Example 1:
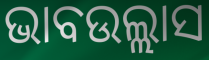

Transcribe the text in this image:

ଭାବଉଲ୍ଲାସ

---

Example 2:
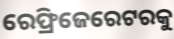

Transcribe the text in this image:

ରେଫ୍ରିଜେରେଟରକୁ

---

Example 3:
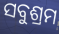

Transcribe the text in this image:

ସବୁଶ୍ରମ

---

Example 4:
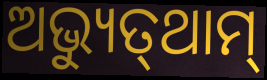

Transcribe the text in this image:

ଅଭ୍ୟୁତ୍‌ଥାମ୍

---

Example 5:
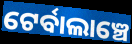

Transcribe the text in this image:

ଟେର୍ବାଲାଞ୍ଚେ